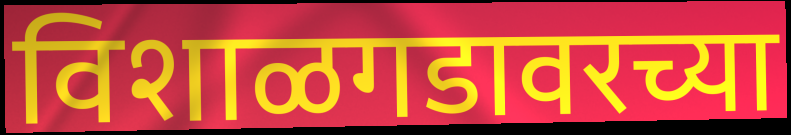
विशाळगडावरच्या